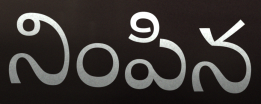
నింపిన